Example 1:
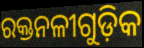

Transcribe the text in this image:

ରକ୍ତନଳୀଗୁଡ଼ିକ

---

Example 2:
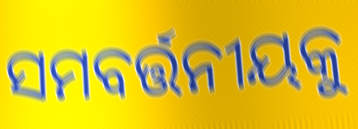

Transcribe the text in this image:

ସମବର୍ତ୍ତନୀୟକୁ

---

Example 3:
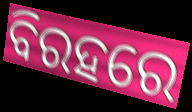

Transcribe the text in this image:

ବିରହରେ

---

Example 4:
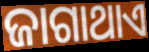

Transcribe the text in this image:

ଜାଗାଥାଏ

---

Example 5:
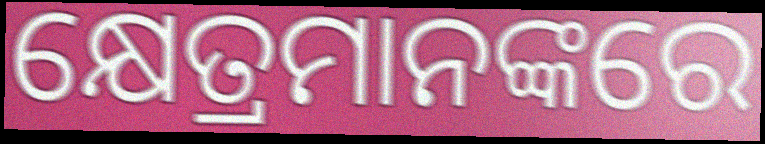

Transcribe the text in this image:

କ୍ଷେତ୍ରମାନଙ୍କରେ